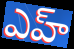
ఎహ్